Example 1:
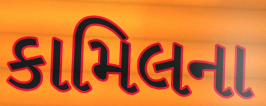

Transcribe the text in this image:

કામિલના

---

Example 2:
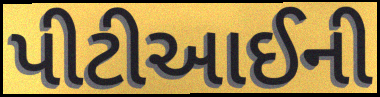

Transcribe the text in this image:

પીટીઆઈની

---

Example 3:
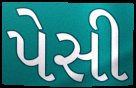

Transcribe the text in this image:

પેસી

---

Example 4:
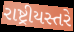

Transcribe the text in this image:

રાષ્ટ્રીયસ્તરે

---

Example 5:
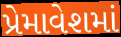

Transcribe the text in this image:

પ્રેમાવેશમાં